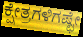
ಕ್ಷೇತ್ರಗಳಿಗಷ್ಟೇ